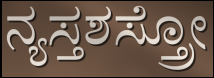
ನ್ಯಸ್ತಶಸ್ತ್ರೋ